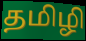
தமிழி